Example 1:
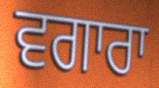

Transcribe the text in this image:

ਵਗਾਰਾ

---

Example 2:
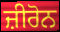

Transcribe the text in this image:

ਜ਼ੀਰੋਨ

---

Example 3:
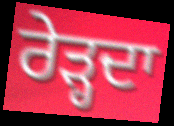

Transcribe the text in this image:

ਰੇੜ੍ਹਦਾ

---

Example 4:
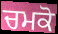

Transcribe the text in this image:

ਚਮਕੋ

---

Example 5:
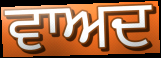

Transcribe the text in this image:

ਵਾਅਦ